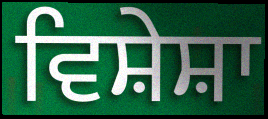
ਵਿਸ਼ੇਸ਼ਾ